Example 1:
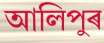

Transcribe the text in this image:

আলিপুৰ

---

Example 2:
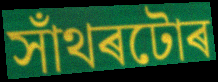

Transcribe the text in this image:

সাঁথৰটোৰ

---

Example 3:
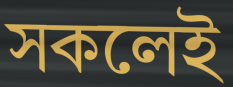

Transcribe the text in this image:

সকলেই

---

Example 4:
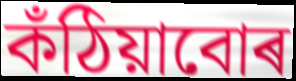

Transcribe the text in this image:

কঁঠিয়াবোৰ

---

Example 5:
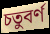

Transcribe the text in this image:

চতুবৰ্ণ